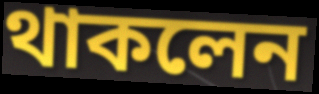
থাকলেন